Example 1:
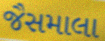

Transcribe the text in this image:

જૈસમાલા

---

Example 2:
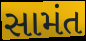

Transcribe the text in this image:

સામંત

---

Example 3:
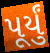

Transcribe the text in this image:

પૂર્યું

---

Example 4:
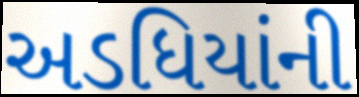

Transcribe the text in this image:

અડધિયાંની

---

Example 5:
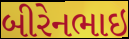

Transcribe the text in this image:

બીરેનભાઇ